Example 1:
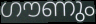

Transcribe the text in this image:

ഗൗണും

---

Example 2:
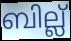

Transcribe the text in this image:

ബില്ല്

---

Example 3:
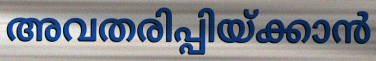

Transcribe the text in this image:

അവതരിപ്പിയ്ക്കാൻ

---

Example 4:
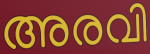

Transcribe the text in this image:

അരവി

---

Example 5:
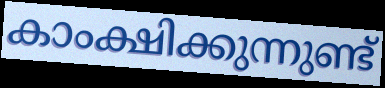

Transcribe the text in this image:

കാംക്ഷിക്കുന്നുണ്ട്